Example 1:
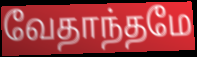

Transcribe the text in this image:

வேதாந்தமே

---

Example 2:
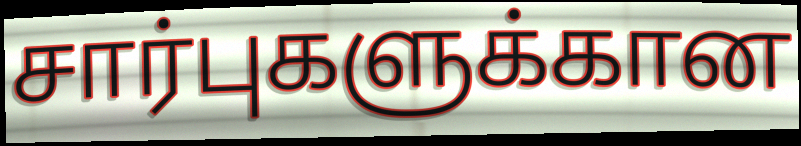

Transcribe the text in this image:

சார்புகளுக்கான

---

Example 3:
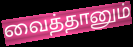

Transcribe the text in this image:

வைத்தானும்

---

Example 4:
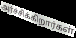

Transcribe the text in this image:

அர்ச்சிக்கிறார்கள்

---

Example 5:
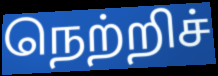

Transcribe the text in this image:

நெற்றிச்